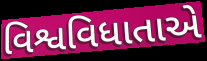
વિશ્વવિધાતાએ